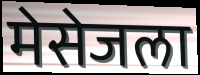
मेसेजला